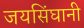
जयसिंघानी